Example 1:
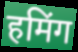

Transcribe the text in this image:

हमिंग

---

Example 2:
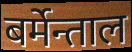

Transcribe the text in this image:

बर्मेन्ताल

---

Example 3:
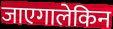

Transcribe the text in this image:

जाएगालेकिन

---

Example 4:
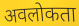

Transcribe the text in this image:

अवलोकता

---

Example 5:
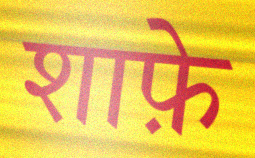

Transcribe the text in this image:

शाफ़े